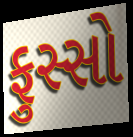
ફુસ્સો